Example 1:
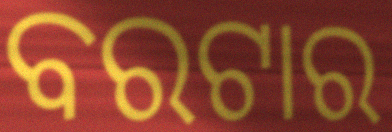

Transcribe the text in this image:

ବରଟାର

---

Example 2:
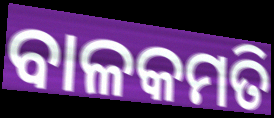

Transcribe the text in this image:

ବାଳକମତି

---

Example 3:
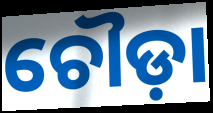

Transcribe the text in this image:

ଚୌଡ଼ା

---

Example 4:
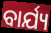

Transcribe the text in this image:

ବାର୍ଯ୍ୟ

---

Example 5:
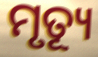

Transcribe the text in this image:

ମୃତ୍ୟୂ